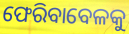
ଫେରିବାବେଳକୁ